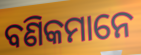
ବଣିକମାନେ